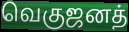
வெகுஜனத்